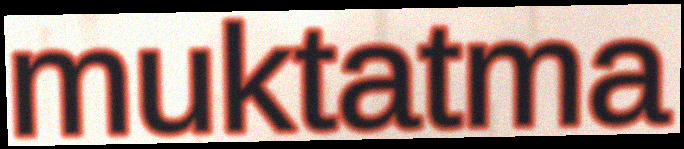
muktatma